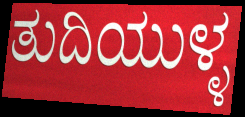
ತುದಿಯುಳ್ಳ